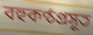
বহুকণ্ঠপ্রসূত